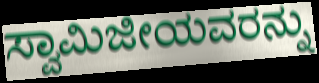
ಸ್ವಾಮಿಜೀಯವರನ್ನು